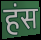
हंस